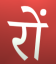
रों